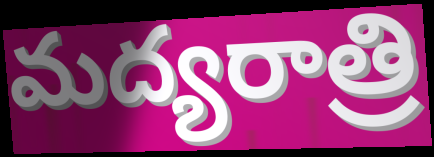
మద్యరాత్రి